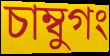
চাম্বুগং